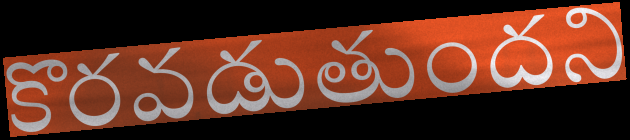
కొరవడుతుందని